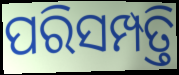
ପରିସମ୍ପତ୍ତି